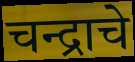
चन्द्राचे